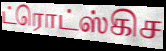
ட்ரொட்ஸ்கிச